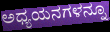
ಅಧ್ಯಯನಗಳನ್ನೂ